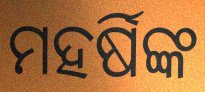
ମହର୍ଷିଙ୍କ